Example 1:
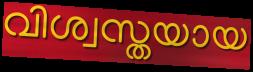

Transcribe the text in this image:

വിശ്വസ്തയായ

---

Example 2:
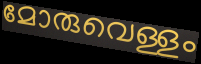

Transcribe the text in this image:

മോരുവെള്ളം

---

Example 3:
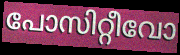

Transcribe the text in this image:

പോസിറ്റീവോ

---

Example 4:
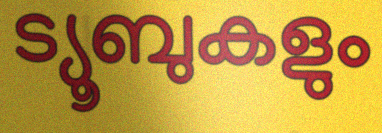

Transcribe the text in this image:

ട്യൂബുകളും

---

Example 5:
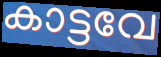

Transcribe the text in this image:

കാട്ടവേ